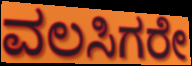
ವಲಸಿಗರೇ